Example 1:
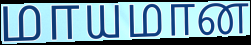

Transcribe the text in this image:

மாயமான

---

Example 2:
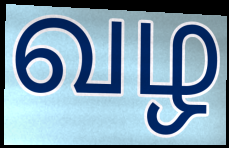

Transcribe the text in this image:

வழ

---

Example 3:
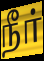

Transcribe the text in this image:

நீர்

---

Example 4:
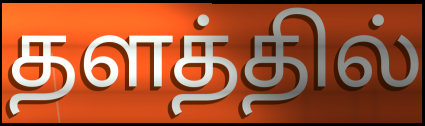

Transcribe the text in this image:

தளத்தில்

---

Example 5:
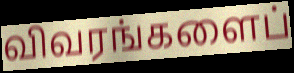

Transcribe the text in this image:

விவரங்களைப்